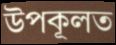
উপকূলত